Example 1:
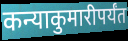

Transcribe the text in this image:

कन्याकुमारीपर्यंत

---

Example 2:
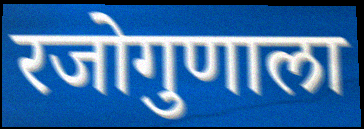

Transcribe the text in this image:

रजोगुणाला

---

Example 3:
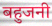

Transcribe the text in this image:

बहुजनी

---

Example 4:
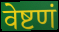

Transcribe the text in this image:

वेष्टणं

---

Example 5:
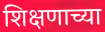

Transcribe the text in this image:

शिक्षणाच्या